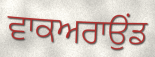
ਵਾਕਅਰਾਉਂਡ